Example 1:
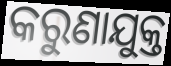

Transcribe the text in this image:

କରୁଣାଯୁକ୍ତ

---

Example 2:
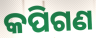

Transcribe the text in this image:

କପିଗଣ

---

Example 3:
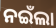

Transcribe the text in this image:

ନଇଁଲା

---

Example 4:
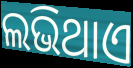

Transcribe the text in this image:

ଲଭିଥାଏ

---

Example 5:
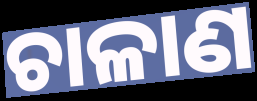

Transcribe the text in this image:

ଚାଳାଣ